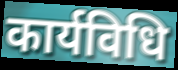
कार्यविधि